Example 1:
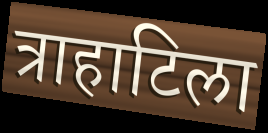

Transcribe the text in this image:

त्राहाटिला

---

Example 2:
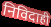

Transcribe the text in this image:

निविदाही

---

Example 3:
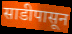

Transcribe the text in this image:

साडीपासून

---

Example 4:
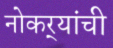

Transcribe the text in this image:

नोकर्यांची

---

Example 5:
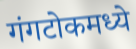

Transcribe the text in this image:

गंगटोकमध्ये